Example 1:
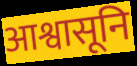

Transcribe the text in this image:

आश्वासूनि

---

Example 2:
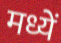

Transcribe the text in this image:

मध्यें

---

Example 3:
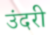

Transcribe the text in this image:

उंदरी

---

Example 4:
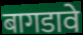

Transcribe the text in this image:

बागडावे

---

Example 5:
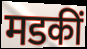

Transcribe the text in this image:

मडकीं